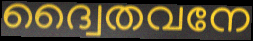
ദ്വൈതവനേ